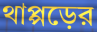
থাপ্পড়ের